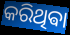
କରିଥିଵା